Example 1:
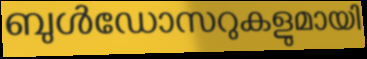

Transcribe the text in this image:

ബുൾഡോസറുകളുമായി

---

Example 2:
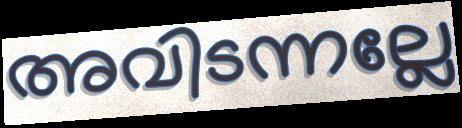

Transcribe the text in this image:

അവിടന്നല്ലേ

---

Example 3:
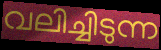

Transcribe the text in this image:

വലിച്ചിടുന്ന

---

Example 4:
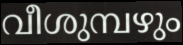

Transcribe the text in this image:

വീശുമ്പഴും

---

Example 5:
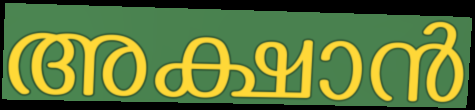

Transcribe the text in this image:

അക്ഷാൻ